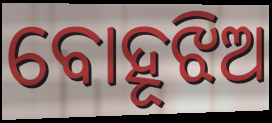
ବୋହୂଝିଅ